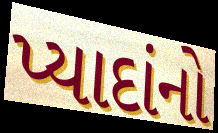
પ્યાદાંનો